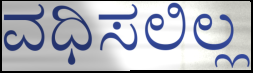
ವಧಿಸಲಿಲ್ಲ